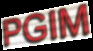
PGIM